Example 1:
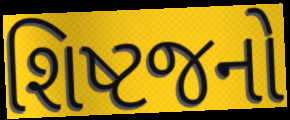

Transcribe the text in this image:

શિષ્ટજનો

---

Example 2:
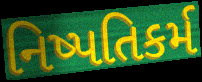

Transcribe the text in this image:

નિષ્પતિકર્મ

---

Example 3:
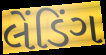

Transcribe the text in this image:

લેંડિંગ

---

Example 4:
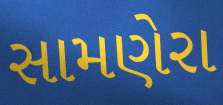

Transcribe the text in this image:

સામણેરા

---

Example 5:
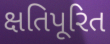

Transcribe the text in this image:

ક્ષતિપૂરિત